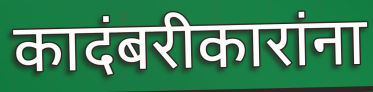
कादंबरीकारांना